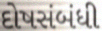
દોષસંબંધી